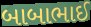
બાબાભાઈ